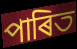
পাৰিত